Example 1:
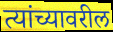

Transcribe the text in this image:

त्यांच्यावरील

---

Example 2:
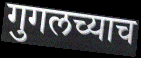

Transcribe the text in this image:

गुगलच्याच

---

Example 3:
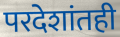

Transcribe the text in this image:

परदेशांतही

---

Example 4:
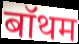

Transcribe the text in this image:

बॉथम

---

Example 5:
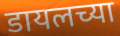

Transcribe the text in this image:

डायलच्या